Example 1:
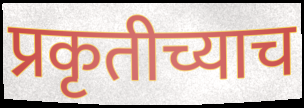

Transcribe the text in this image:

प्रकृतीच्याच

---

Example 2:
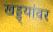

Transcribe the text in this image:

खड्ड्यांवर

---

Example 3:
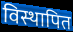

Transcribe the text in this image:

विस्थापित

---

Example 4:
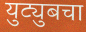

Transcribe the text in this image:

युट्युबचा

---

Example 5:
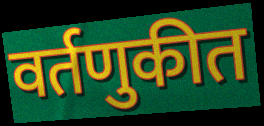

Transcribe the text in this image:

वर्तणुकीत